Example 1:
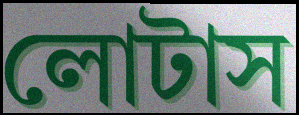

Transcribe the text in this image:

লোটাস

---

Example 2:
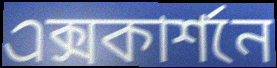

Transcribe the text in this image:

এক্সকার্শনে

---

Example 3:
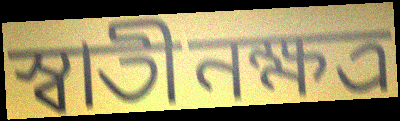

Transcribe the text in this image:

স্বাতীনক্ষত্র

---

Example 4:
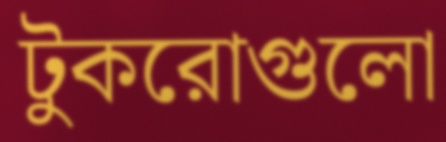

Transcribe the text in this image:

টুকরোগুলো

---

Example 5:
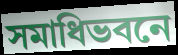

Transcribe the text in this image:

সমাধিভবনে